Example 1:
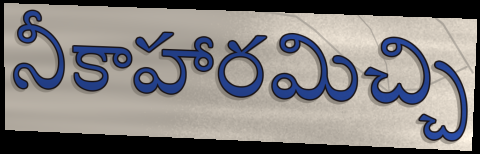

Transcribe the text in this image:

నీకాహారమిచ్చి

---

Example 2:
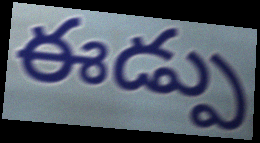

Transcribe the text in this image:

ఈడ్పు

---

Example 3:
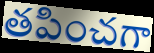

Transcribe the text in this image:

తపించగా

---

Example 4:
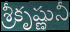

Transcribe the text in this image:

శ్రీకృష్ణునీ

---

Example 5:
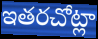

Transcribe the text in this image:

ఇతరచోట్లా